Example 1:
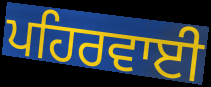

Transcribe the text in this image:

ਪਹਿਰਵਾਈ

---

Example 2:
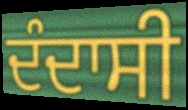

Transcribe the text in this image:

ਦੰਦਾਸੀ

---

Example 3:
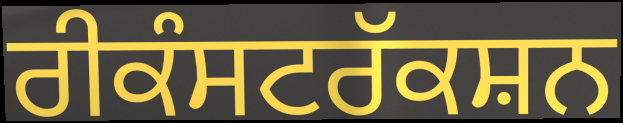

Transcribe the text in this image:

ਰੀਕੰਸਟਰੱਕਸ਼ਨ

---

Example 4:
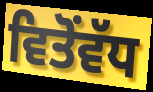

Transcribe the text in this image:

ਵਿਤੋਂਵੱਧ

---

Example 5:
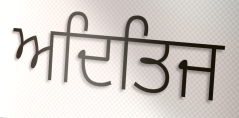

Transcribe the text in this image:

ਅਦਿਤਿਜ